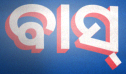
ବାସ୍